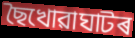
ছৈখোৱাঘাটৰ